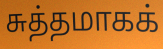
சுத்தமாகக்